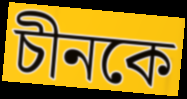
চীনকে